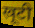
खूटी